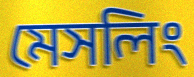
মেসলিং